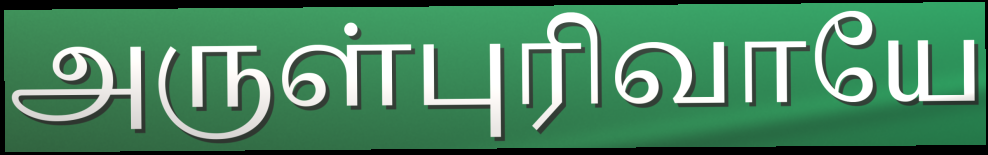
அருள்புரிவாயே